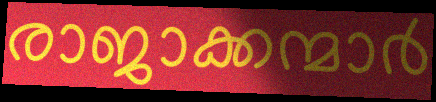
രാജാക്കന്മാർ